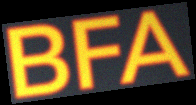
BFA